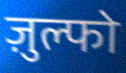
ज़ुल्फो